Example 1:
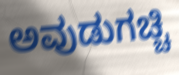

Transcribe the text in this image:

ಅವುಡುಗಚ್ಚಿ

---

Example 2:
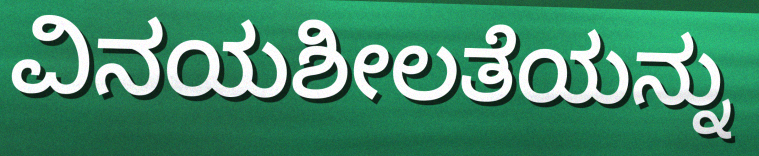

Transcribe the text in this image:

ವಿನಯಶೀಲತೆಯನ್ನು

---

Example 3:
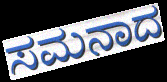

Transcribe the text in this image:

ಸಮನಾದ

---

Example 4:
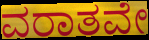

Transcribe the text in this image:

ವರಾತವೇ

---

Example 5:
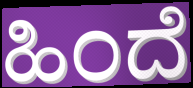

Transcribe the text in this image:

ಹಿಂದೆ